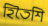
হিতৈশি